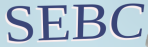
SEBC